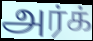
அர்க்